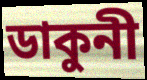
ডাকুনী